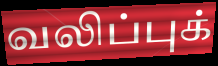
வலிப்புக்